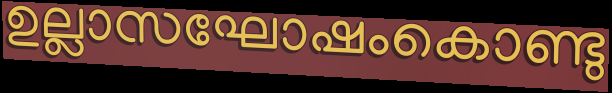
ഉല്ലാസഘോഷംകൊണ്ടു